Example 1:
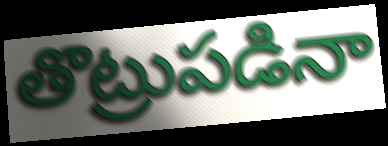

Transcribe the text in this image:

తొట్రుపడినా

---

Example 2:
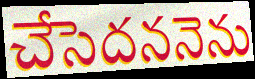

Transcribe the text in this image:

చేసెదననెను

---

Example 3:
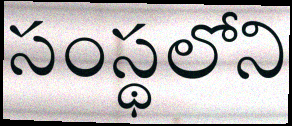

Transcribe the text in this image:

సంస్థలోని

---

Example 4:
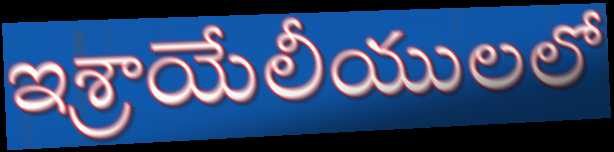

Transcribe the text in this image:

ఇశ్రాయేలీయులలో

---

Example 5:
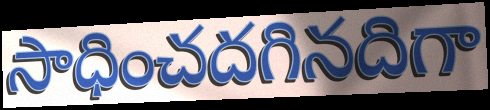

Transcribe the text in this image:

సాధించదగినదిగా